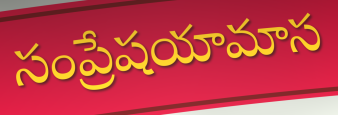
సంప్రేషయామాస